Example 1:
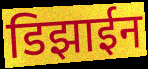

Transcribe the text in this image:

डिझाईन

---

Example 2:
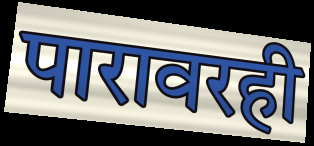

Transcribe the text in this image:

पारावरही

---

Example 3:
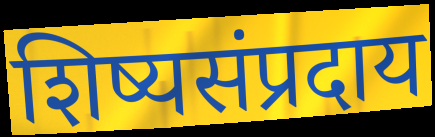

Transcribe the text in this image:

शिष्यसंप्रदाय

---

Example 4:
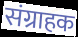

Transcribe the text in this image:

संग्राहक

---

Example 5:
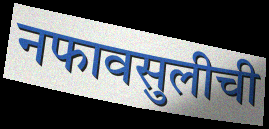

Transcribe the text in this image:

नफावसुलीची